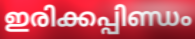
ഇരിക്കപ്പിണ്ഡം